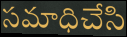
సమాధిచేసి